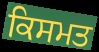
ਕਿਸਮਤ